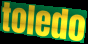
toledo